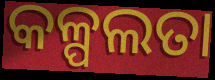
କଳ୍ପଲତା